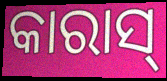
କାରାସ୍